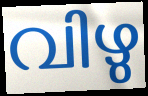
വിഴു